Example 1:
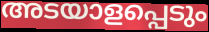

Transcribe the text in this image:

അടയാളപ്പെടും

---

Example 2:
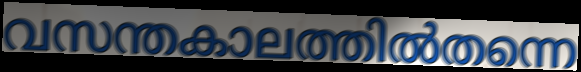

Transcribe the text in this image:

വസന്തകാലത്തിൽതന്നെ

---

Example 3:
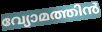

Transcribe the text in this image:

വ്യോമത്തിൻ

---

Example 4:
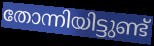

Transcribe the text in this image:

തോന്നിയിട്ടുണ്ട്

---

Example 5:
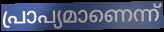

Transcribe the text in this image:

പ്രാപ്യമാണെന്ന്